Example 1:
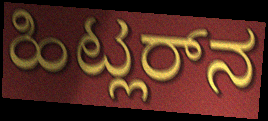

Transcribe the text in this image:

ಹಿಟ್ಲರ್‌ನ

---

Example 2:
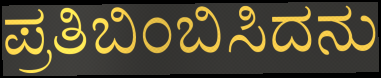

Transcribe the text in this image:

ಪ್ರತಿಬಿಂಬಿಸಿದನು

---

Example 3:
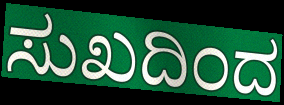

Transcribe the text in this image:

ಸುಖದಿಂದ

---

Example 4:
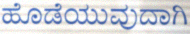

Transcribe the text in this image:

ಹೊಡೆಯುವುದಾಗಿ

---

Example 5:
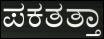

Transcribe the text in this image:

ಪಕತತ್ತಾ